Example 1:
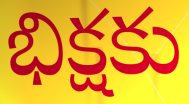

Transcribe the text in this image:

భిక్షకు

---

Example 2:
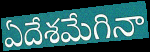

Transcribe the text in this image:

ఏదేశమేగినా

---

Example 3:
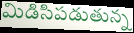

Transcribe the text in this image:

మిడిసిపడుతున్న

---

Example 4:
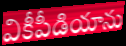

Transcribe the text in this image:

వికీపీడియాను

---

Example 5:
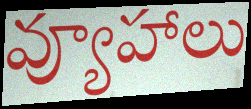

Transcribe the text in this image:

వ్యూహాలు